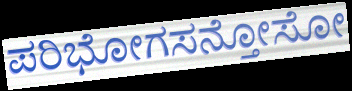
ಪರಿಭೋಗಸನ್ತೋಸೋ